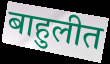
बाहुलीत